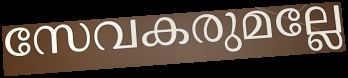
സേവകരുമല്ലേ